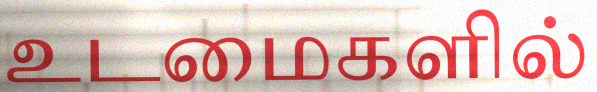
உடமைகளில்